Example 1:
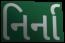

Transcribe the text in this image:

નિર્ના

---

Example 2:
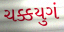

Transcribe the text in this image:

ચક્કયુગં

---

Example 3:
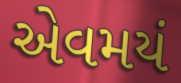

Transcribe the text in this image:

એવમયં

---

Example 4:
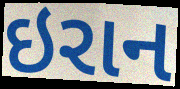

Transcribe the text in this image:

ઇરાન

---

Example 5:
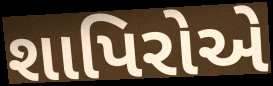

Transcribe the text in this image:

શાપિરોએ